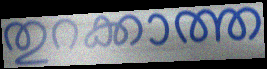
തുറക്കാത്ത